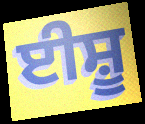
ਈਸ਼ੂ